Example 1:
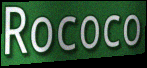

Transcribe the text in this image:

Rococo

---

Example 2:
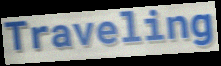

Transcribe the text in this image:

Traveling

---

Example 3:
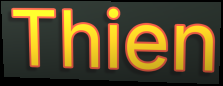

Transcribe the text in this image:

Thien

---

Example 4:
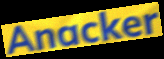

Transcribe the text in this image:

Anacker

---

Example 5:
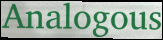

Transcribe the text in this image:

Analogous